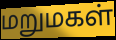
மறுமகள்